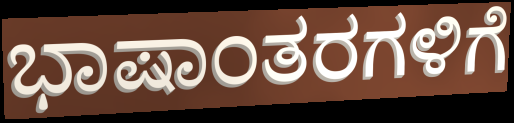
ಭಾಷಾಂತರಗಳಿಗೆ